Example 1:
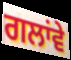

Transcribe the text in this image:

ਗਲਾਂਵੇ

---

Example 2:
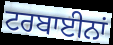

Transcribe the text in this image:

ਟਰਬਾਈਨਾਂ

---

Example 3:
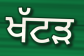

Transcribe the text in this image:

ਖੱਟੜ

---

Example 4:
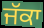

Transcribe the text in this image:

ਜੱਕਾ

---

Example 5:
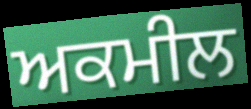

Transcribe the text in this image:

ਅਕਮੀਲ